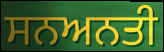
ਸਨਅਨਤੀ